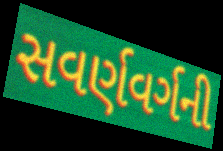
સવર્ણવર્ગની